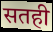
सतही